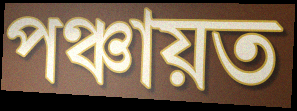
পঞ্চায়ত